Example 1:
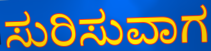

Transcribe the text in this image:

ಸುರಿಸುವಾಗ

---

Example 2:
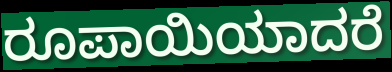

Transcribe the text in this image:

ರೂಪಾಯಿಯಾದರೆ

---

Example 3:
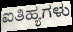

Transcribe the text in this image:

ಐತಿಹ್ಯಗಳು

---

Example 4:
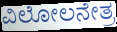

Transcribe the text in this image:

ವಿಲೋಲನೇತ್ರ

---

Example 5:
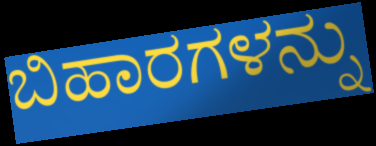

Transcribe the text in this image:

ಬಿಹಾರಗಳನ್ನು